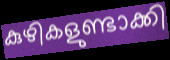
കുഴികളുണ്ടാക്കി